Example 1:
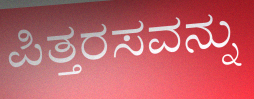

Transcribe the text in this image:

ಪಿತ್ತರಸವನ್ನು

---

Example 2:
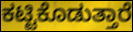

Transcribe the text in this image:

ಕಟ್ಟಿಕೊಡುತ್ತಾರೆ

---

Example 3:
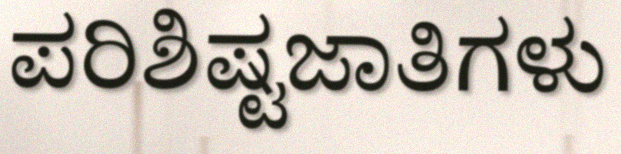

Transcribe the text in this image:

ಪರಿಶಿಷ್ಟಜಾತಿಗಳು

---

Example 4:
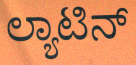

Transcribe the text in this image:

ಲ್ಯಾಟಿನ್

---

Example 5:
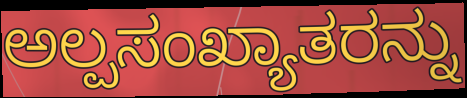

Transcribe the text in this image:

ಅಲ್ಪಸಂಖ್ಯಾತರನ್ನು